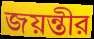
জয়ন্তীর